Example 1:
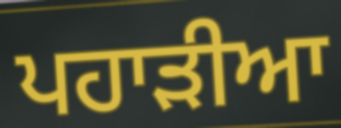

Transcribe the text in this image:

ਪਹਾੜੀਆ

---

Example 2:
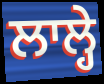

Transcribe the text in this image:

ਲਾਲ੍ਹੇ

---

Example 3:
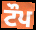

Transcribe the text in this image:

ਟੌਪ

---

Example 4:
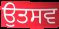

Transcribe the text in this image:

ਉਤਸਵ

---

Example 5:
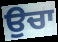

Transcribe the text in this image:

ਉਚਾ